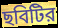
ছবিটির